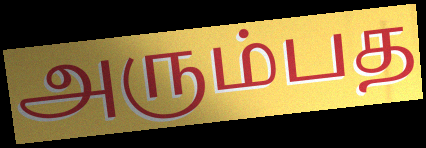
அரும்பத